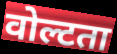
वोल्टता